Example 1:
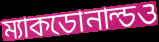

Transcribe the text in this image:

ম্যাকডোনাল্ডও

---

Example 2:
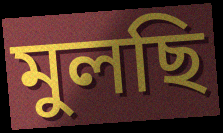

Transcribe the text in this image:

মুলছি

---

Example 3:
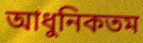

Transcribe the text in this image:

আধুনিকতম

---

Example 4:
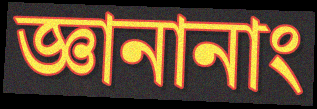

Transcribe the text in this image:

জ্ঞানানাং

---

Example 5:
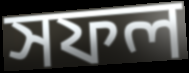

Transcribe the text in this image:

সফল